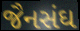
જૈનસંઘ